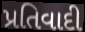
પ્રતિવાદી